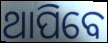
ଥାପିବେ